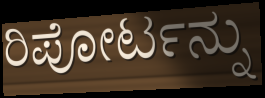
ರಿಪೋರ್ಟನ್ನು